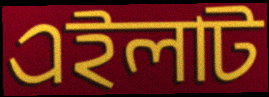
এইলাট